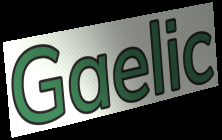
Gaelic